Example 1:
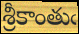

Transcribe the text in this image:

శ్రీకాంతుఁ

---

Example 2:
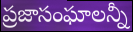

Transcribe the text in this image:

ప్రజాసంఘాలన్నీ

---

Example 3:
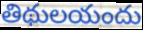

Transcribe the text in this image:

తిథులయందు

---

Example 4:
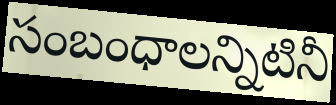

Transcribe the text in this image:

సంబంధాలన్నిటినీ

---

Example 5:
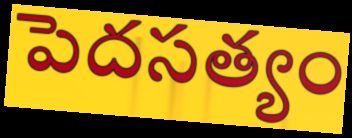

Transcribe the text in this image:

పెదసత్యం